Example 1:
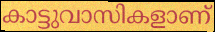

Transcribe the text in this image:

കാട്ടുവാസികളാണ്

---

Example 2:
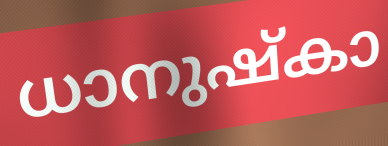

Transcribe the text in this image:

ധാനുഷ്കാ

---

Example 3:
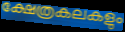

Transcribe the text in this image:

ക്ഷേത്രകലകളും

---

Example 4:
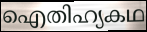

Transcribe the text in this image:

ഐതിഹ്യകഥ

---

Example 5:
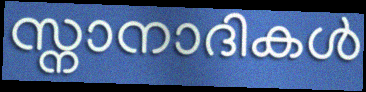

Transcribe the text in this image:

സ്നാനാദികൾ